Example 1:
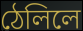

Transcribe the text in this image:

ঠেলিলে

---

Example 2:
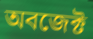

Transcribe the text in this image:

অবজেক্ট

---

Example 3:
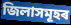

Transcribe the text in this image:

জিলাসমূহৰ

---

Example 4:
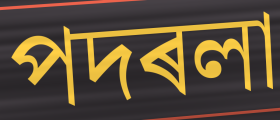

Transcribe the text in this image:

পদৰলা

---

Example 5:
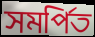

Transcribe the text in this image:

সমৰ্পিত